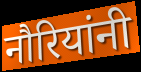
नौरियांनी